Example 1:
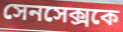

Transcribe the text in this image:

সেনসেক্সকে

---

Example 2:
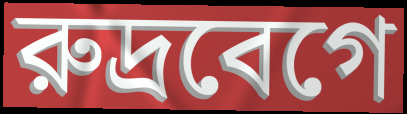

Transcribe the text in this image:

রুদ্রবেগে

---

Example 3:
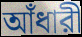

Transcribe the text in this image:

আঁধারী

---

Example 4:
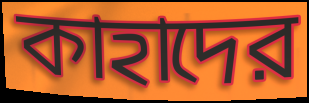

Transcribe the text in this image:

কাহাদের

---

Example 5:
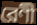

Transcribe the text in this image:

রেণী